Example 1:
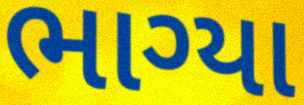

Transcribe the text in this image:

ભાગ્યા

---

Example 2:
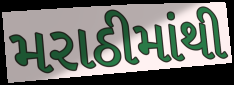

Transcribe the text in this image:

મરાઠીમાંથી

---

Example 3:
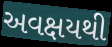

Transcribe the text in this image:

અવક્ષયથી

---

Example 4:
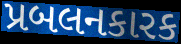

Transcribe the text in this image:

પ્રબલનકારક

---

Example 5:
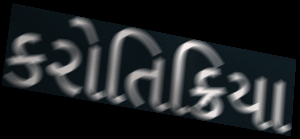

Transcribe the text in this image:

કરોતિક્રિયા